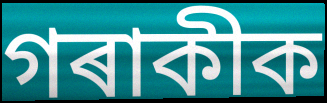
গৰাকীক